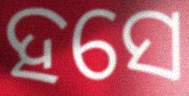
ହସେ